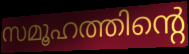
സമൂഹത്തിന്റെ